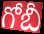
గోబీ